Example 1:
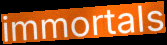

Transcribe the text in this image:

immortals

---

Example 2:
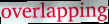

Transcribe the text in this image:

overlapping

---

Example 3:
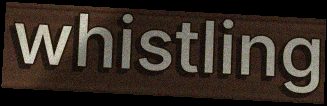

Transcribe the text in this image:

whistling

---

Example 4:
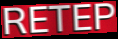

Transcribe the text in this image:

RETEP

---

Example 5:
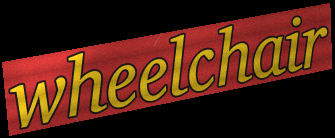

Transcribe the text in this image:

wheelchair